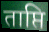
ताप्ति